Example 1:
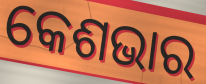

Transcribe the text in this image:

କେଶଭାର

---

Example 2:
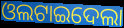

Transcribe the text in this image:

ଓଲଟାଇଦେଲା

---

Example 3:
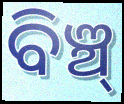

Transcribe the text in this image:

ବିଞ୍ଚ୍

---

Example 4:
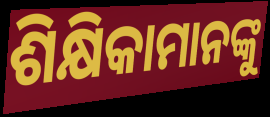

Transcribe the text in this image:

ଶିକ୍ଷିକାମାନଙ୍କୁ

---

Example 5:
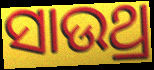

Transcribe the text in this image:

ସାଉଥ୍ର